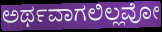
ಅರ್ಥವಾಗಲಿಲ್ಲವೋ